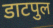
डाटपुल